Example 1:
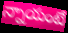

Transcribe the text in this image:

న్నాయంటే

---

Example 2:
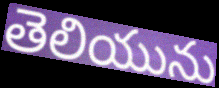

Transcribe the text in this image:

తెలియును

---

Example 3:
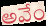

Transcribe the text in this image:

అవేం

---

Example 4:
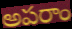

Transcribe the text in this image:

అపరాం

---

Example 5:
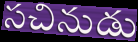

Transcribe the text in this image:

సచినుడు